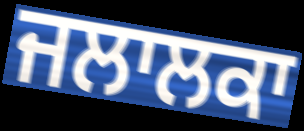
ਜਲਾਲਕਾ